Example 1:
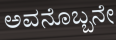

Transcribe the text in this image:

ಅವನೊಬ್ಬನೇ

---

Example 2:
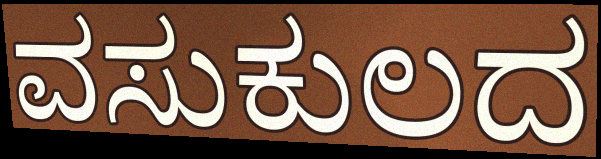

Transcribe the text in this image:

ವಸುಕುಲದ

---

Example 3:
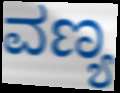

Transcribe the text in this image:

ವಣ್ಯ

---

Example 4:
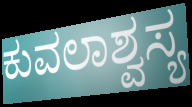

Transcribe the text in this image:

ಕುವಲಾಶ್ವಸ್ಯ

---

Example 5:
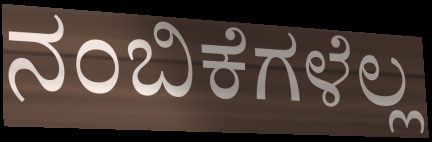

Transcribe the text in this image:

ನಂಬಿಕೆಗಳೆಲ್ಲ